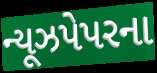
ન્યૂઝપેપરના